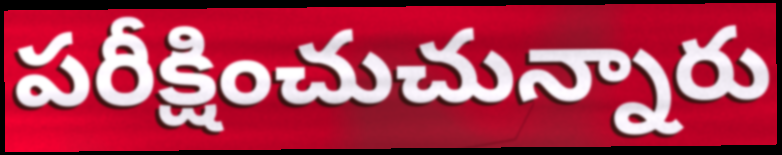
పరీక్షించుచున్నారు